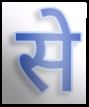
से